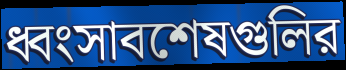
ধ্বংসাবশেষগুলির